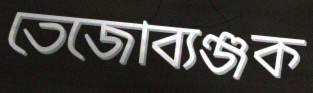
তেজোব্যঞ্জক